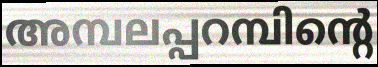
അമ്പലപ്പറമ്പിന്റെ